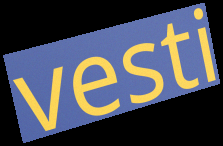
vesti